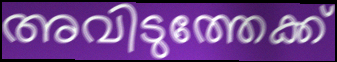
അവിടുത്തേക്ക്